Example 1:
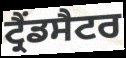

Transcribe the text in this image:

ਟ੍ਰੈਂਡਸੈਟਰ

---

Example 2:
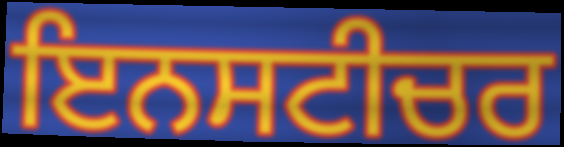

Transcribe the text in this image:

ਇਨਸਟੀਚਰ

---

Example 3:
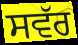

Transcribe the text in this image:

ਸਵੱਰ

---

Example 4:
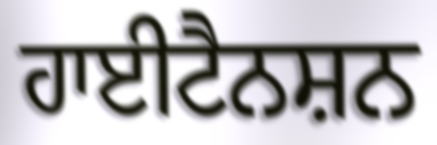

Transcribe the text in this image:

ਹਾਈਟੈਨਸ਼ਨ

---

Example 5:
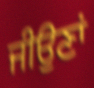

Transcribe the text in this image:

ਜੀਉਣਾਂ